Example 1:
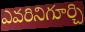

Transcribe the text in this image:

ఎవరినిగూర్చి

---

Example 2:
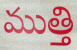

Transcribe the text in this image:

ముత్తి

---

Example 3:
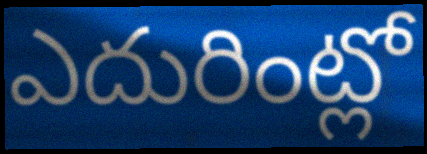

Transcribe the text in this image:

ఎదురింట్లో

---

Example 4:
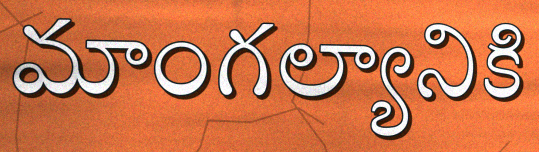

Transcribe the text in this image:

మాంగల్యానికి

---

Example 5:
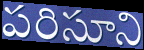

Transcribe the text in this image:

పరిసూని